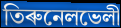
তিৰুনেলভেলী